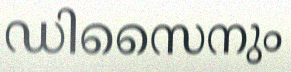
ഡിസൈനും